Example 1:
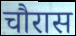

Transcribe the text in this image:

चौरास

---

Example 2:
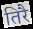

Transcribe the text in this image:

तिरै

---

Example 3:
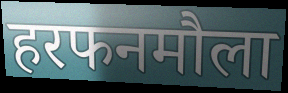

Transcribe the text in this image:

हरफनमौला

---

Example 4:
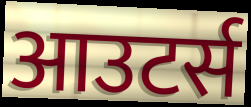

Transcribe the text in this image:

आउटर्स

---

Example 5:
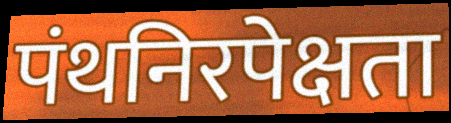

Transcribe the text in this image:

पंथनिरपेक्षता